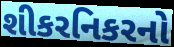
શીકરનિકરનો